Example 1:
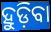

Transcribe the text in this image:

ହୁଡ଼ିବା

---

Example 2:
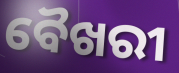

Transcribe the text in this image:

ବୈଖରୀ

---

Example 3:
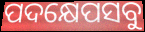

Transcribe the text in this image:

ପଦକ୍ଷେପସବୁ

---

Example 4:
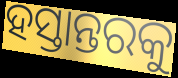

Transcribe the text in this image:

ହସ୍ତାନ୍ତରକୁ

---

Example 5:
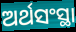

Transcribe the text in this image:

ଅର୍ଥସଂସ୍ଥା